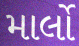
માર્લો